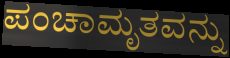
ಪಂಚಾಮೃತವನ್ನು